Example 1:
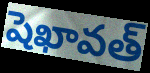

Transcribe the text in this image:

షెఖావత్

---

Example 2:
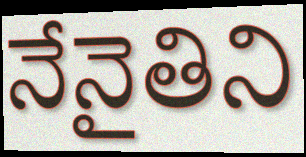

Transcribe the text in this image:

నేనైతిని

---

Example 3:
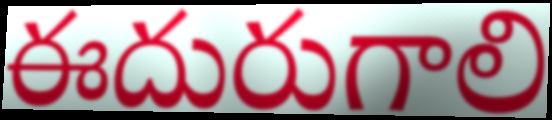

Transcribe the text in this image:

ఈదురుగాలి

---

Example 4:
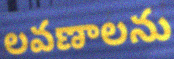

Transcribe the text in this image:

లవణాలను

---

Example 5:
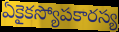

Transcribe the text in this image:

ఏకైకస్యోపకారస్య